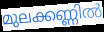
മുലക്കണ്ണിൽ